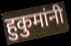
हुकुमांनी